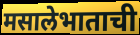
मसालेभाताची